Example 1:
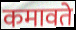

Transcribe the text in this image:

कमावते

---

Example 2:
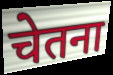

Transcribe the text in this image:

चेतना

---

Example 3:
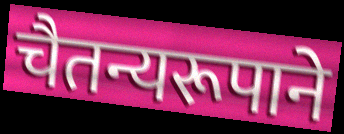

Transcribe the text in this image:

चैतन्यरूपाने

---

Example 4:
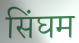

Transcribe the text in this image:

सिंघम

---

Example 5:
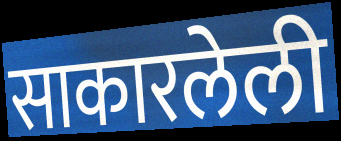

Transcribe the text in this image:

साकारलेली